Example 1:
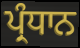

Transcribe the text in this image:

ਪ੍ਰੰਧਾਨ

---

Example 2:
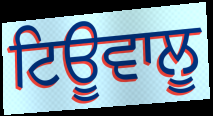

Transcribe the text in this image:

ਟਿਊਵਾਲੂ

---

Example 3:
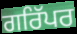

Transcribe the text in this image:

ਗਰਿੱਪਰ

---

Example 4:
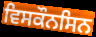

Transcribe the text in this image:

ਵਿਸਕੌਨਸਿਨ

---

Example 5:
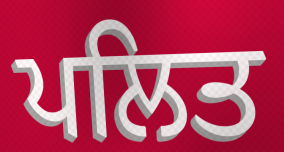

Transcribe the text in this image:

ਪਲਿਤ